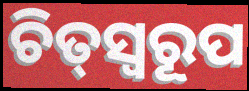
ଚିତ୍‌ସ୍ୱରୂପ